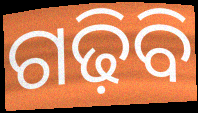
ଗଢ଼ିବି